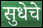
सुधेचे